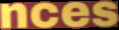
nces